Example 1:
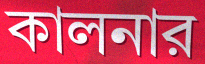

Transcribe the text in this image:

কালনার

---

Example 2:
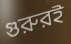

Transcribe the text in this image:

গুরুরই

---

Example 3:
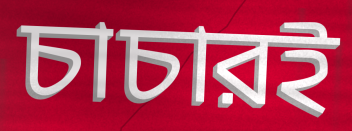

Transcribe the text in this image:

চাচারই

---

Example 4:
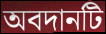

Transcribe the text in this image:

অবদানটি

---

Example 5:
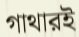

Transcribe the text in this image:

গাথারই